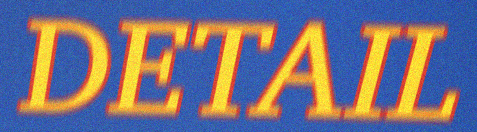
DETAIL